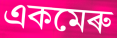
একমেৰু